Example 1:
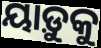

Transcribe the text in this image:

ୟାଡ଼ୁକୁ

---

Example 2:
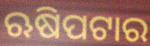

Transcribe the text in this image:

ଋଷିପଟାର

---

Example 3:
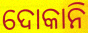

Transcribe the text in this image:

ଦୋକାନି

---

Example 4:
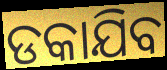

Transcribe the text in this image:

ଡକାଯିବ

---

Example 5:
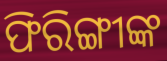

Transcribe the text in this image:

ଫିରିଙ୍ଗୀଙ୍କ